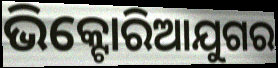
ଭିକ୍ଟୋରିଆଯୁଗର